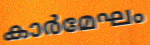
കാർമേഘം